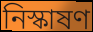
নিস্কাষণ